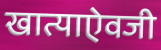
खात्याऐवजी